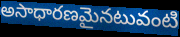
అసాధారణమైనటువంటి